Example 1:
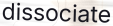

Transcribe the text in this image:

dissociate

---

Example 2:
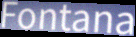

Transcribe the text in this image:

Fontana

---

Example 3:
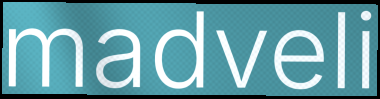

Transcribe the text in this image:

madveli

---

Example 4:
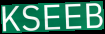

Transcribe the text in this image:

KSEEB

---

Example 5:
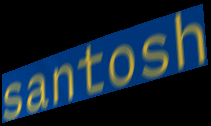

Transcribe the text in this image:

santosh